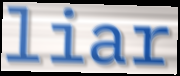
liar